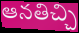
ఆనతిచ్చి